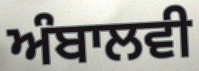
ਅੰਬਾਲਵੀ